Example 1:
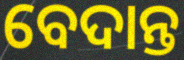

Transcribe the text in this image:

ବେଦାନ୍ତ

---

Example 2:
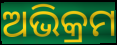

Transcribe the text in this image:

ଅଭିକ୍ରମ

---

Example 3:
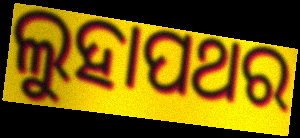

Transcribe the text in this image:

ଲୁହାପଥର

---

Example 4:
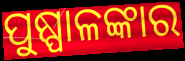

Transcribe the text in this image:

ପୁଷ୍ପାଳଙ୍କାର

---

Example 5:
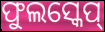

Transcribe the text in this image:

ଫୁଲସ୍କେପ୍